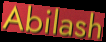
Abilash